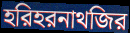
হরিহরনাথজির